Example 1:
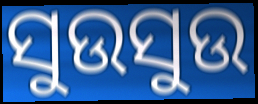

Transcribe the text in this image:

ସୁଉସୁଉ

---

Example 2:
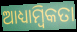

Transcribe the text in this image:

ଆଧ୍ୟାମ୍ବିକତା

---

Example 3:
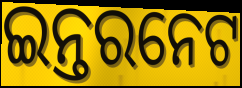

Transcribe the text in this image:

ଇନ୍ତରନେଟ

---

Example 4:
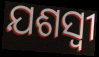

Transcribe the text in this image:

ଯଶସ୍ଵୀ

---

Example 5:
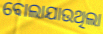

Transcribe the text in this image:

ବୋଲାଯାଉଥିଲା